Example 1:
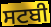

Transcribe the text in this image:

ਸਟਬੀ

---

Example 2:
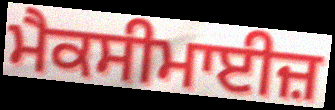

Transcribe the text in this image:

ਮੈਕਸੀਮਾਈਜ਼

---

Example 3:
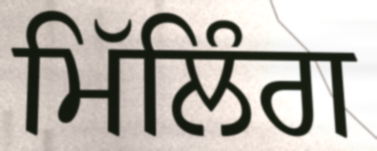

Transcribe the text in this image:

ਮਿੱਲਿੰਗ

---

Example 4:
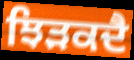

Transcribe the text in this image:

ਝਿੜਕਦੈ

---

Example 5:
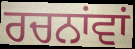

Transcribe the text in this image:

ਰਚਨਾਂਵਾਂ